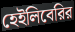
হেইলিবেরির